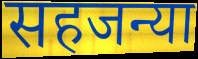
सहजन्या